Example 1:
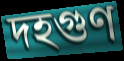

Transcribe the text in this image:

দহগুণ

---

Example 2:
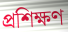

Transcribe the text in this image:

প্ৰশিক্ষণ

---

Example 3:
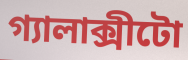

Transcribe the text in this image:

গ্যালাক্সীটো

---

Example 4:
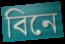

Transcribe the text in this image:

বিনে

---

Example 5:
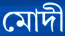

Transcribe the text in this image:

মোদী